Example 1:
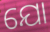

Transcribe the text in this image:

ଯୋ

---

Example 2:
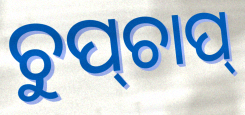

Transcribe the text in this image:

ଚୁପ୍‌ଚାପ୍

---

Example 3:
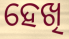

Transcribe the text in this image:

ହେଖି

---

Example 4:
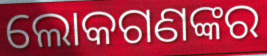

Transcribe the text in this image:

ଲୋକଗଣଙ୍କର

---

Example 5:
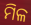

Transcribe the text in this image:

ମିଳ